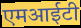
एमआईटी